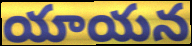
యాయన